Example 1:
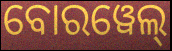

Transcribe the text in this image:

ବୋରୱେଲ୍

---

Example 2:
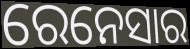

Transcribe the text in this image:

ରେନେସାର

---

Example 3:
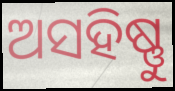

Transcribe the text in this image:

ଅସହିଷ୍ଣୁ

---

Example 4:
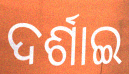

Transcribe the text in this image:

ଦର୍ଶାଇ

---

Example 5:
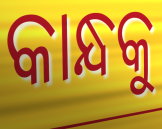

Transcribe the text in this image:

କାନ୍ଧକୁ